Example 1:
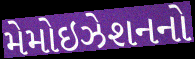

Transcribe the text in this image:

મેમોઇઝેશનનો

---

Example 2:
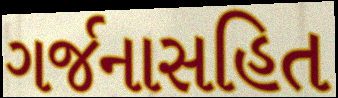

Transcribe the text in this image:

ગર્જનાસહિત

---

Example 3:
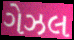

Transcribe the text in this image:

ગેઝલ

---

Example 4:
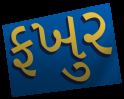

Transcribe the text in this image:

ફખુર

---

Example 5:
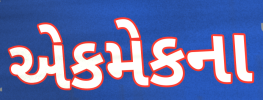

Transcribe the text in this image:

એકમેકના